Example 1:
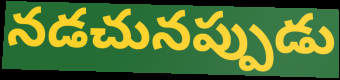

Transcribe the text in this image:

నడచునప్పుడు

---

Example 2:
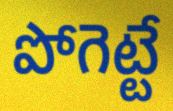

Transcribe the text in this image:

పోగెట్టే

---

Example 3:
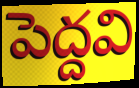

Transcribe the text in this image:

పెద్దవి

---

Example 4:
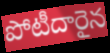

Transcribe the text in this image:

పోటీదారైన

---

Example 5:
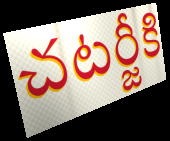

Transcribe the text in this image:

చటర్జీకి